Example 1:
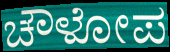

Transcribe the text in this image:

ಚೌಳೋಪ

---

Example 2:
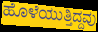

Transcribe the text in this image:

ಹೊಳೆಯುತ್ತಿದ್ದವು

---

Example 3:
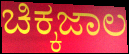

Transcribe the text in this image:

ಚಿಕ್ಕಜಾಲ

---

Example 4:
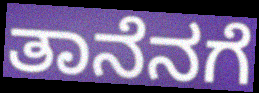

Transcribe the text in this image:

ತಾನೆನಗೆ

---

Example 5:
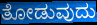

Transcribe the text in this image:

ತೋಡುವುದು